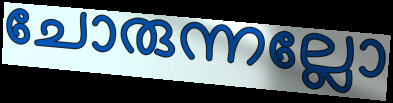
ചോരുന്നല്ലോ